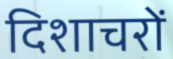
दिशाचरों